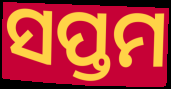
ସପ୍ତମ